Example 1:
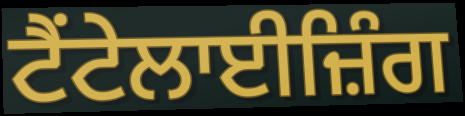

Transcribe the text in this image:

ਟੈਂਟੇਲਾਈਜ਼ਿੰਗ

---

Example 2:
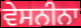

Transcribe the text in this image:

ਵੇਸਨੀਨਾ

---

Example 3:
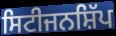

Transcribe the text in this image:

ਸਿਟੀਜਨਸ਼ਿੱਪ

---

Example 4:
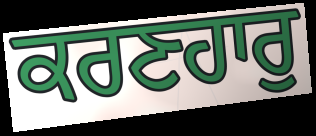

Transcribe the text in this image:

ਕਰਣਹਾਰੁ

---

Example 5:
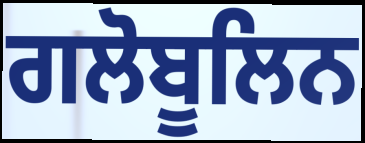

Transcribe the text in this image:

ਗਲੋਬੂਲਿਨ